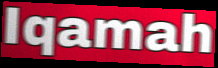
Iqamah